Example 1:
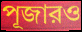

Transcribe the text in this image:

পূজারও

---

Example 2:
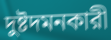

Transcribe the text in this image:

দুষ্টদমনকারী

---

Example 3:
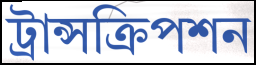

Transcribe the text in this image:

ট্রান্সক্রিপশন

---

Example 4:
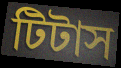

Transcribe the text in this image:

টিটাস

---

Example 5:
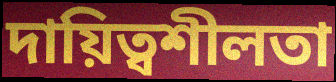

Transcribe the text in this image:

দায়িত্বশীলতা